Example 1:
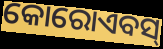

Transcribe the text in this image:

କୋରୋଏବସ୍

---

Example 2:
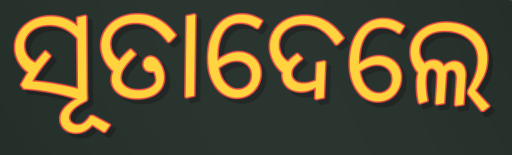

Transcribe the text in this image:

ସୂତାଦେଲେ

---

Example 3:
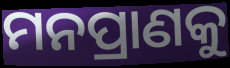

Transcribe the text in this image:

ମନପ୍ରାଣକୁ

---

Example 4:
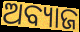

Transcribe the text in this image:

ଅବ୍ଯାଜ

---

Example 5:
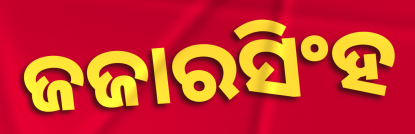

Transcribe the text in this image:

ଜଜାରସିଂହ